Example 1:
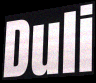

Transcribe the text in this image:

Duli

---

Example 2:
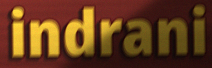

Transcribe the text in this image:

indrani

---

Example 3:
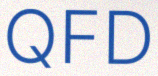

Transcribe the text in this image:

QFD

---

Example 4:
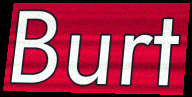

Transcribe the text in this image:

Burt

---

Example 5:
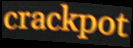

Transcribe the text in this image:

crackpot